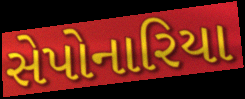
સેપોનારિયા